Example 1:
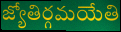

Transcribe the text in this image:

జ్యోతిర్గమయేతి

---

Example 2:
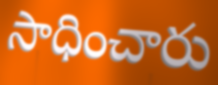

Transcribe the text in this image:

సాధించారు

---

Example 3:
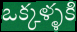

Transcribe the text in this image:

ఒక్కళ్ళకి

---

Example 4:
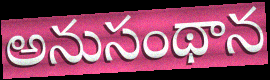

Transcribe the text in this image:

అనుసంథాన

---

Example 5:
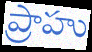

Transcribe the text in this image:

ప్రాహు